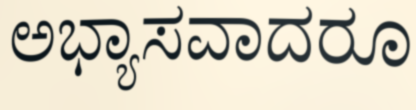
ಅಭ್ಯಾಸವಾದರೂ